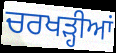
ਚਰਖੜ੍ਹੀਆਂ